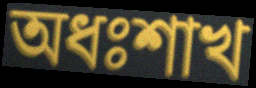
অধঃশাখ